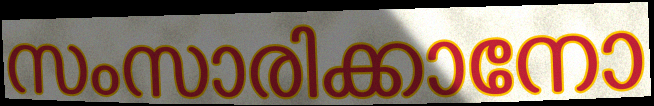
സംസാരിക്കാനോ